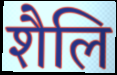
शैलि